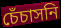
চেঁচাসনি